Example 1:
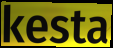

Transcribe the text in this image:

kesta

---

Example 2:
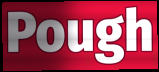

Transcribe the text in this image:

Pough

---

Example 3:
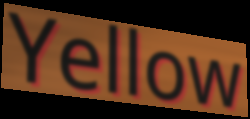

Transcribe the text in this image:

Yellow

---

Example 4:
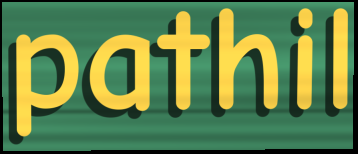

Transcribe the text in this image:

pathil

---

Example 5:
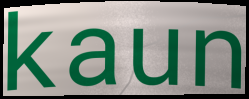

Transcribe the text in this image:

kaun